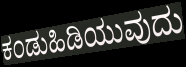
ಕಂಡುಹಿಡಿಯುವುದು